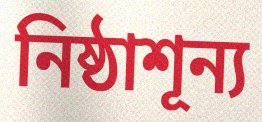
নিষ্ঠাশূন্য